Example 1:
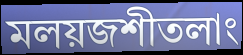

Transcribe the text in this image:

মলয়জশীতলাং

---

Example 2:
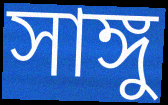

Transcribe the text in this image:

সাঙ্গু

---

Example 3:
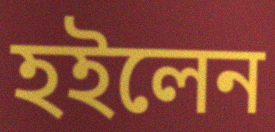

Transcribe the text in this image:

হইলেন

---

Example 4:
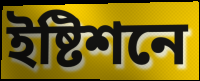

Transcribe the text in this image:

ইষ্টিশনে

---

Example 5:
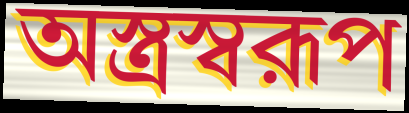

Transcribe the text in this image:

অস্ত্রস্বরূপ